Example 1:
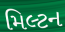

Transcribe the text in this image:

મિલ્ટન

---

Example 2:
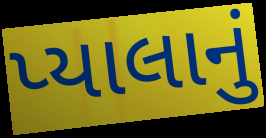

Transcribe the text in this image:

પ્યાલાનું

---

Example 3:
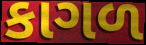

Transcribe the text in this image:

કાગળ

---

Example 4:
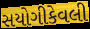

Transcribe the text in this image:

સયોગીકેવલી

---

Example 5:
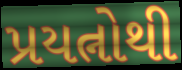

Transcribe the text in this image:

પ્રયત્નોથી